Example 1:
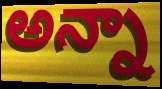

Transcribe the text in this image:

అన్నా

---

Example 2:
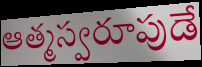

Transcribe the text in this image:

ఆత్మస్వరూపుడే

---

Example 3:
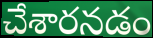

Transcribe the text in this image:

చేశారనడం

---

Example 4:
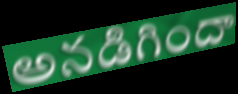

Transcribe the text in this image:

అనడిగిందా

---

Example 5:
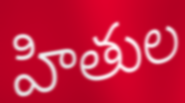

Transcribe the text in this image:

హితుల